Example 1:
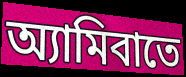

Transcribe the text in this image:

অ্যামিবাতে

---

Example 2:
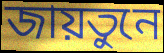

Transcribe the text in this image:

জায়তুনে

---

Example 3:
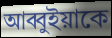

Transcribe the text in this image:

আব্বুইয়াকে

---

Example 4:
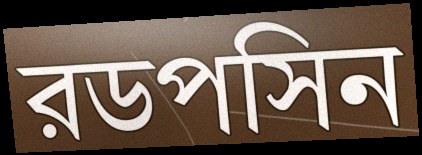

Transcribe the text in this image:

রডপসিন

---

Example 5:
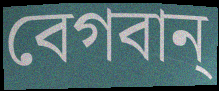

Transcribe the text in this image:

বেগবান্